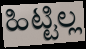
ಹಿಟ್ಟಿಲ್ಲ